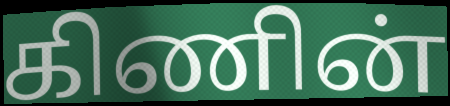
கிணின்